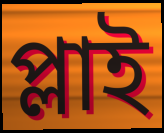
প্লাই